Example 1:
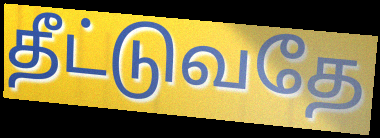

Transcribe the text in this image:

தீட்டுவதே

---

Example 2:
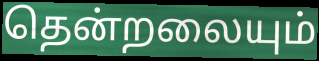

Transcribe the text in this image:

தென்றலையும்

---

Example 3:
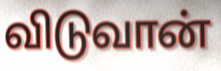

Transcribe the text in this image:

விடுவான்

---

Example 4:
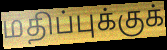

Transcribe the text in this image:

மதிப்புக்குக்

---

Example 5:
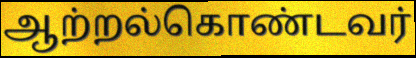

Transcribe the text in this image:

ஆற்றல்கொண்டவர்